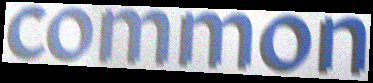
common